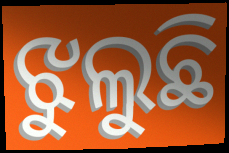
ଝୁଲୁଛି